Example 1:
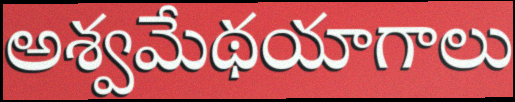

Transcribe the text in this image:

అశ్వమేథయాగాలు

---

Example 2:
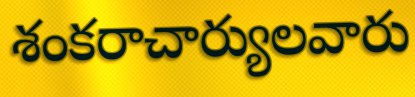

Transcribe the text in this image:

శంకరాచార్యులవారు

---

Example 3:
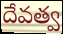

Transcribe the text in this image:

దేవత్వ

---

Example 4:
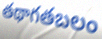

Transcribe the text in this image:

తథాగతబలం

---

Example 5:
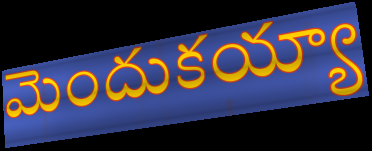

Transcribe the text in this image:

మెందుకయ్యా